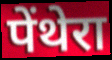
पेंथेरा